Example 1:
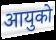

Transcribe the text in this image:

आयुको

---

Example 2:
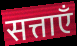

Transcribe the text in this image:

सत्ताएँ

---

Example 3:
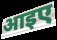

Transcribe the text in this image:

आइए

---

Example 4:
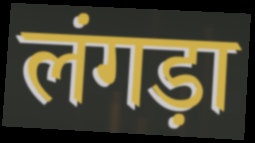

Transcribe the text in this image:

लंगड़ा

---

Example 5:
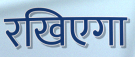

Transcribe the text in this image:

रखिएगा